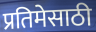
प्रतिमेसाठी